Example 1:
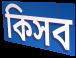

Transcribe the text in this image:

কিসব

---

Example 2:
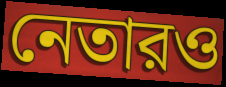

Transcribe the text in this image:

নেতারও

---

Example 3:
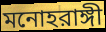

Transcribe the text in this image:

মনোহরাঙ্গী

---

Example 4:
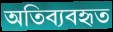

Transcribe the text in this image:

অতিব্যবহৃত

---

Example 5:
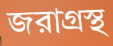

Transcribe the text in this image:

জরাগ্রস্থ